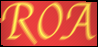
ROA